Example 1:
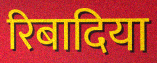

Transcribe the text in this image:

रिबादिया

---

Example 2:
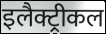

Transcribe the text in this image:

इलैक्ट्रीकल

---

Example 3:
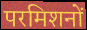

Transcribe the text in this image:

परमिशनों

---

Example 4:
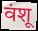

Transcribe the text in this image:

वंशू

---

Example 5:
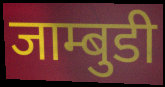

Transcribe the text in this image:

जाम्बुडी